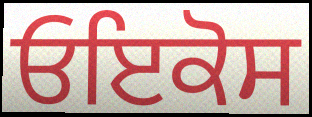
ਓਇਕੋਸ